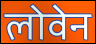
लोवेन